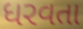
ધરવતા